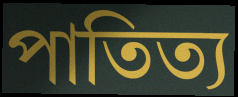
পাতিত্য